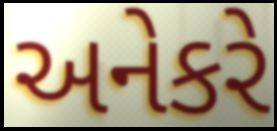
અનેકરે